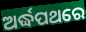
ଅର୍ଦ୍ଧପଥରେ